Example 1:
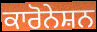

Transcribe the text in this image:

ਕਾਰੋਨੇਸ਼ਨ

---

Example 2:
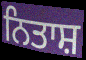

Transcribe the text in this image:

ਨਿਤਾਸ਼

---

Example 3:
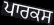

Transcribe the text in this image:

ਪਾਰਕਸ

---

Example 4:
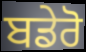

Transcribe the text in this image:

ਬਡੇਰੋ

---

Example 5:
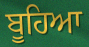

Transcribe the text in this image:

ਬੂਹਿਆ